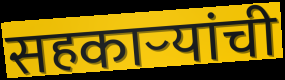
सहकाऱ्यांची